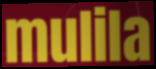
mulila